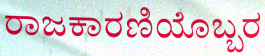
ರಾಜಕಾರಣಿಯೊಬ್ಬರ